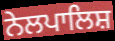
ਨੇਲਪਾਲਿਸ਼